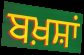
ਬਖ਼ਸ਼ਾਂ